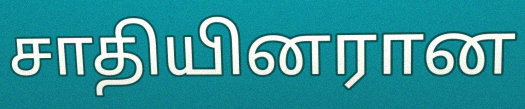
சாதியினரான